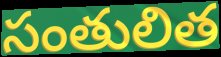
సంతులిత